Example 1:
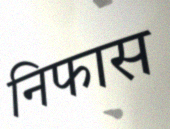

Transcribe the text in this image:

निफास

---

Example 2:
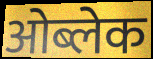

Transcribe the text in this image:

ओब्लेक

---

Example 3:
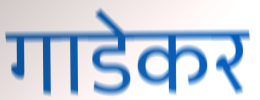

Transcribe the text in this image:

गाडेकर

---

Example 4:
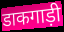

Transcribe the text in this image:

डाकगाड़ी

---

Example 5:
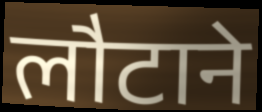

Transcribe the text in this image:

लौटाने